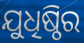
ଯୁଧିଷ୍ଠିର